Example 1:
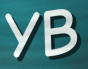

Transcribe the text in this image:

YB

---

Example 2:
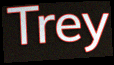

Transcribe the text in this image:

Trey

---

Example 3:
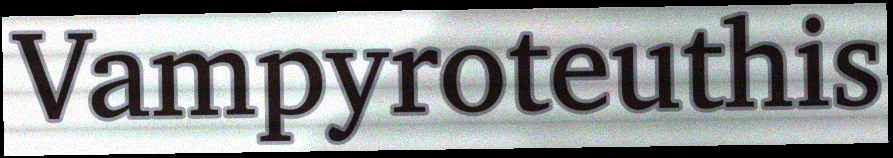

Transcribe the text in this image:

Vampyroteuthis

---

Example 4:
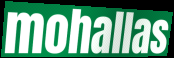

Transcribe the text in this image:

mohallas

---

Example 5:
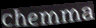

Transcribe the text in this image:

chemma